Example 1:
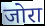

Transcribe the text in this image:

जोरा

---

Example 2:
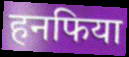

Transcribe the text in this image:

हनफिया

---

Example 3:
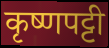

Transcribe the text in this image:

कृष्णपट्टी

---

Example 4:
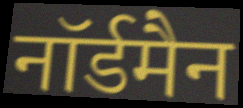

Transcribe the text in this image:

नॉर्डमैन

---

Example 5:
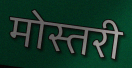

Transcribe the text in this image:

मोस्तरी